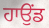
ਹਾਉਂਡ